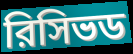
রিসিভড